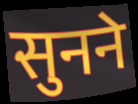
सुनने